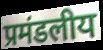
प्रमंडलीय